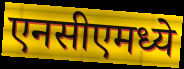
एनसीएमध्ये